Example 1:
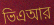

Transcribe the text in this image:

ভিএআর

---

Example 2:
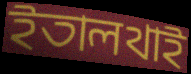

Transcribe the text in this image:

ইতালথাই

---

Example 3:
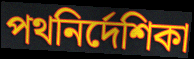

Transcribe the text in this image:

পথনির্দেশিকা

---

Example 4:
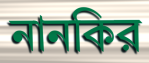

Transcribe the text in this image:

নানকির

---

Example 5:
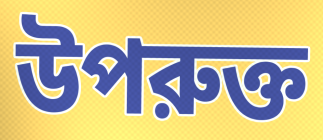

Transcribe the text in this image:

উপরুক্ত